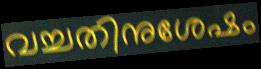
വച്ചതിനുശേഷം